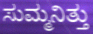
ಸುಮ್ಮನಿತ್ತು